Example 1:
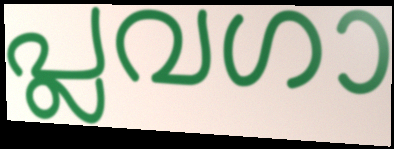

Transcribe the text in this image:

പ്ലവഗാ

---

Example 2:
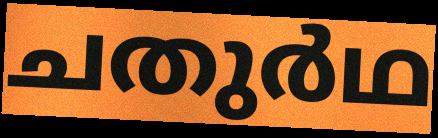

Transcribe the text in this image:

ചതുർഥ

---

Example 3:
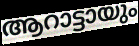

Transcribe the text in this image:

ആറാട്ടായും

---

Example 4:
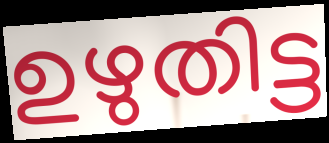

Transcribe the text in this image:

ഉഴുതിട്ട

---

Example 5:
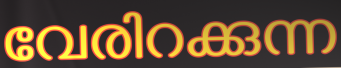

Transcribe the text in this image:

വേരിറക്കുന്ന